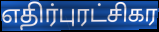
எதிர்புரட்சிகர